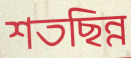
শতছিন্ন